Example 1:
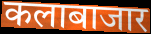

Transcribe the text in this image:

कलाबाजार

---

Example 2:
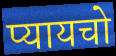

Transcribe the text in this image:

प्यायचो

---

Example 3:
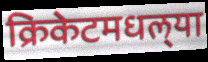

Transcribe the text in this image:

क्रिकेटमधल्या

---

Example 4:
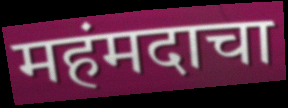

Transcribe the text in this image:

महंमदाचा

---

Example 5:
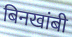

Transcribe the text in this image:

बिनखांबी